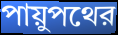
পায়ুপথের